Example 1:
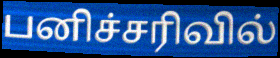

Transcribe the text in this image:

பனிச்சரிவில்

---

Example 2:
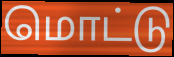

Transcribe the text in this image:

மொட்டு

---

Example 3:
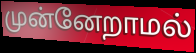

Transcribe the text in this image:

முன்னேறாமல்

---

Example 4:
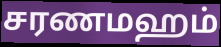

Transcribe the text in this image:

சரணமஹம்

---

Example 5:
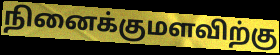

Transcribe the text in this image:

நினைக்குமளவிற்கு